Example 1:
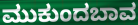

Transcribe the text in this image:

ಮುಕುಂದಬಾವ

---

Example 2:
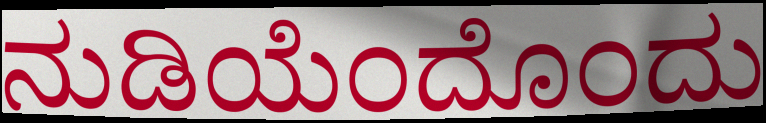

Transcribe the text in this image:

ನುಡಿಯೆಂದೊಂದು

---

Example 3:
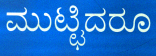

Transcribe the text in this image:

ಮುಟ್ಟಿದರೂ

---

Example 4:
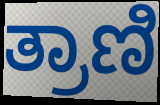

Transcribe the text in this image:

ತ್ರಾಣಿ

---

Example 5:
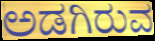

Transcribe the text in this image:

ಅಡಗಿರುವ